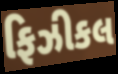
ફિઝીકલ